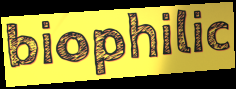
biophilic